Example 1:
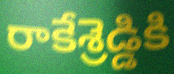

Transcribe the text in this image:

రాకేశ్రెడ్డికి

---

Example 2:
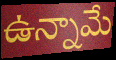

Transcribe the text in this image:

ఉన్నామే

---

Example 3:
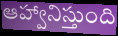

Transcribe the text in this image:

ఆహ్వానిస్తుంది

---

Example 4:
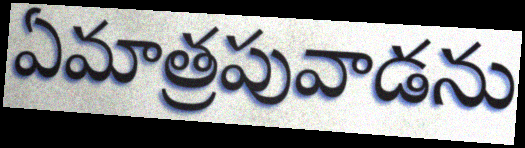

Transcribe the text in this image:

ఏమాత్రపువాడను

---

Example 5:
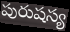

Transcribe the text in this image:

పురుషస్య